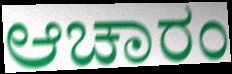
ಆಚಾರಂ